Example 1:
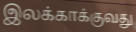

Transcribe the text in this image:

இலக்காக்குவது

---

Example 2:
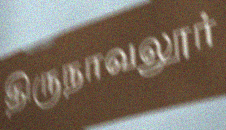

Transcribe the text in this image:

திருநாவலூர்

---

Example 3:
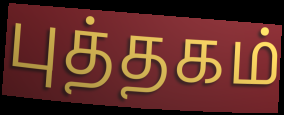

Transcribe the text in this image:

புத்தகம்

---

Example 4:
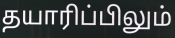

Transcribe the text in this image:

தயாரிப்பிலும்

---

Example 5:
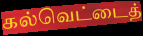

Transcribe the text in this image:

கல்வெட்டைத்